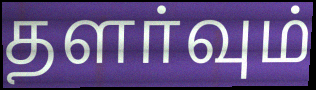
தளர்வும்